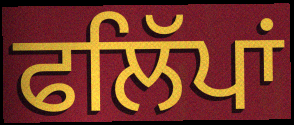
ਫਲਿੱਪਾਂ